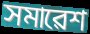
সমাৱেশ